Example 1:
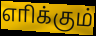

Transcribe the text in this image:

எரிக்கும்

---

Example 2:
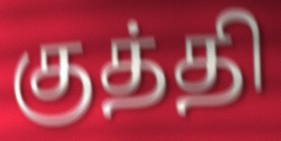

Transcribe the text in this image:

குத்தி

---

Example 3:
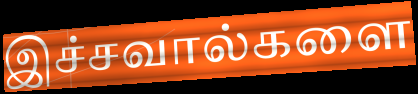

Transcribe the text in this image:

இச்சவால்களை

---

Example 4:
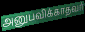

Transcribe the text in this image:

அனுபவிக்காதவர்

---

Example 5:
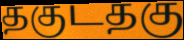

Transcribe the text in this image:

தகுடதகு